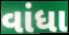
વાંધા